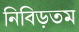
নিবিড়তম